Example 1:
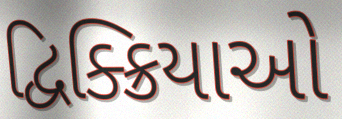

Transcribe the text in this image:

દ્વિક્ક્રિયાઓ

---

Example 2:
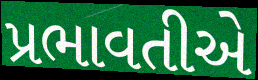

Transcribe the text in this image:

પ્રભાવતીએ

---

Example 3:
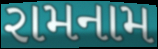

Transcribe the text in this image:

રામનામ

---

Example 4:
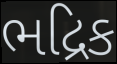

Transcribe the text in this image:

ભદ્રિક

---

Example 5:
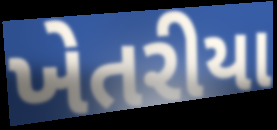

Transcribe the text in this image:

ખેતરીયા